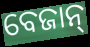
ବେଜାନ୍